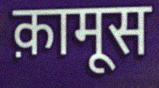
क़ामूस